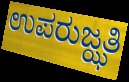
ಉಪರುಜ್ಝತಿ